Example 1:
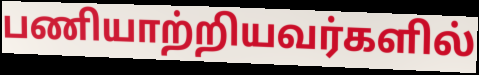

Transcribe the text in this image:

பணியாற்றியவர்களில்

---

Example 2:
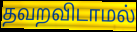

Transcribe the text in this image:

தவறவிடாமல்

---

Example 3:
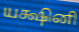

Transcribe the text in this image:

யக்ஷினி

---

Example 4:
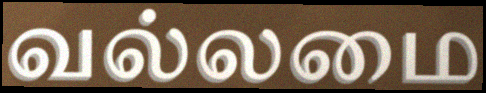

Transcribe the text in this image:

வல்லமை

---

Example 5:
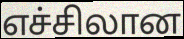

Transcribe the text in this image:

எச்சிலான